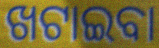
ଖଟାଇବା